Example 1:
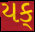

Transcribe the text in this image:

યક્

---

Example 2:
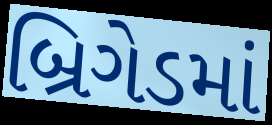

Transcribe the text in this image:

બ્રિગેડમાં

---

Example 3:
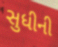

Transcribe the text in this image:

સુધીની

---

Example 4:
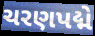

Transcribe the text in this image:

ચરણપદ્મે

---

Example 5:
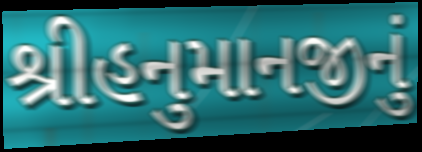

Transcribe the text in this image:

શ્રીહનુમાનજીનું